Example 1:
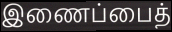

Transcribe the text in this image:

இணைப்பைத்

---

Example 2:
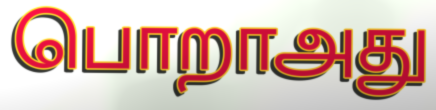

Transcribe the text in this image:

பொறாஅது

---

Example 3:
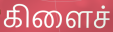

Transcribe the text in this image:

கிளைச்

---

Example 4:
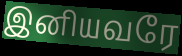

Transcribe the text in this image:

இனியவரே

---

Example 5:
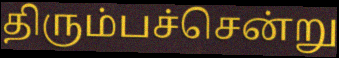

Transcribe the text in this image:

திரும்பச்சென்று